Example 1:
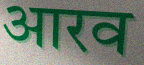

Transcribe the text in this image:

आरव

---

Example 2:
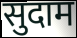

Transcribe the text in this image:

सुदाम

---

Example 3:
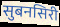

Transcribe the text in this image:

सुबनसिरी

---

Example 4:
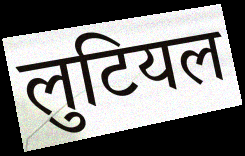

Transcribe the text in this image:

लुटियल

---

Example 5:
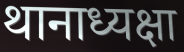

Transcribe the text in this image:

थानाध्यक्षा